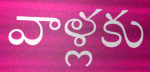
వాళ్లకు